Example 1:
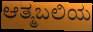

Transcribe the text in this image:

ಆತ್ಮಬಲಿಯ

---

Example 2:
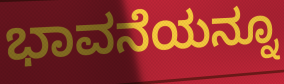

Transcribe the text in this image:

ಭಾವನೆಯನ್ನೂ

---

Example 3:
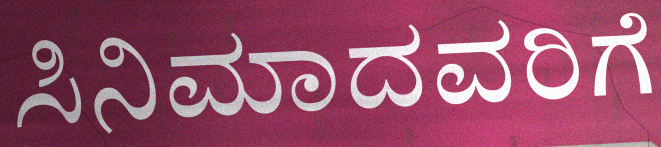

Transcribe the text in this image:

ಸಿನಿಮಾದವರಿಗೆ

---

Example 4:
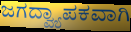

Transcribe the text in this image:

ಜಗದ್ವ್ಯಾಪಕವಾಗಿ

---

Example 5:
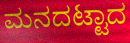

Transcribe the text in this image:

ಮನದಟ್ಟಾದ